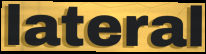
lateral